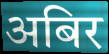
अबिर